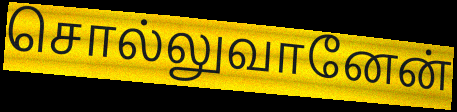
சொல்லுவானேன்